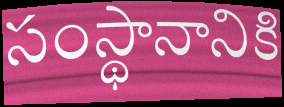
సంస్థానానికి